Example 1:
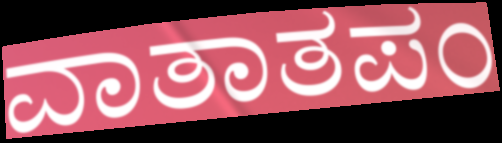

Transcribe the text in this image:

ವಾತಾತಪಂ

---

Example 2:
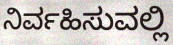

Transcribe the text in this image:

ನಿರ್ವಹಿಸುವಲ್ಲಿ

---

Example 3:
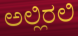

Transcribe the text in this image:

ಅಲ್ಲಿರಲಿ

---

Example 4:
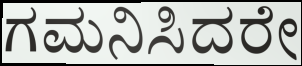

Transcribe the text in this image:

ಗಮನಿಸಿದರೇ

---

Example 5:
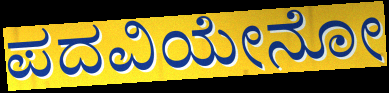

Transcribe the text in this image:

ಪದವಿಯೇನೋ